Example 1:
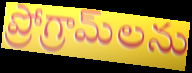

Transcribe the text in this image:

ప్రోగ్రామ్‌లను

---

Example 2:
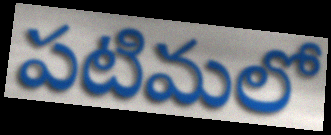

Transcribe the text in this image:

పటిమలో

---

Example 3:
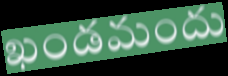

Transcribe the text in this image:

ఖండమందు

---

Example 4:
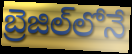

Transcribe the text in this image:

బ్రెజిల్‌లోనే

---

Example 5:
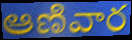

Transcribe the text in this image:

ఆణివార